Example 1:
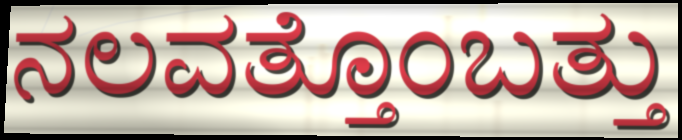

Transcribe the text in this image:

ನಲವತ್ತೊಂಬತ್ತು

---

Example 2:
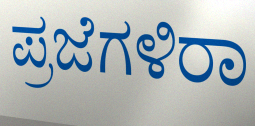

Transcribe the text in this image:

ಪ್ರಜೆಗಳಿರಾ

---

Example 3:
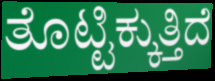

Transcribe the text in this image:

ತೊಟ್ಟಿಕ್ಕುತ್ತಿದೆ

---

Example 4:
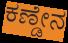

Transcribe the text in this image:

ಕಣ್ಡೇನ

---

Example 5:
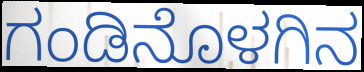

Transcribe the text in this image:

ಗಂಡಿನೊಳಗಿನ